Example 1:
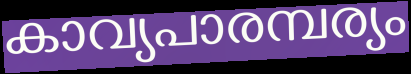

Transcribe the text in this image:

കാവ്യപാരമ്പര്യം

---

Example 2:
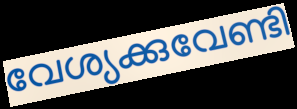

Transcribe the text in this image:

വേശ്യക്കുവേണ്ടി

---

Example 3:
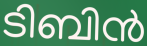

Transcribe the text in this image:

ടിബിൻ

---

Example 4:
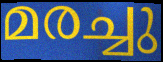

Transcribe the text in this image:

മരച്ചു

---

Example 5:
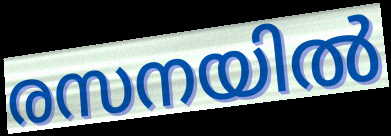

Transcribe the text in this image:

രസനയിൽ